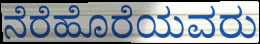
ನೆರೆಹೊರೆಯವರು